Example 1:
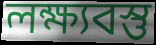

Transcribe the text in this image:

লক্ষ্যবস্তু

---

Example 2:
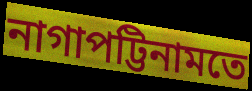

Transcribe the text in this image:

নাগাপট্টিনামতে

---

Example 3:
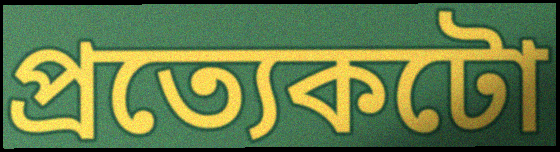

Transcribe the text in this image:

প্ৰত্যেকটো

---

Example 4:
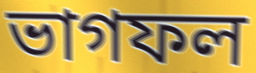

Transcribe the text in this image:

ভাগফল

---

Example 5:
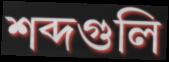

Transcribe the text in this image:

শব্দগুলি